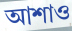
আশাও